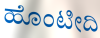
ಹೊಂಟೀದಿ